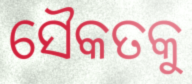
ସୈକତକୁ